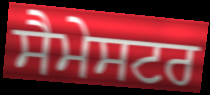
ਸੈਮੇਸਟਰ